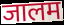
जालम